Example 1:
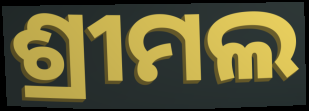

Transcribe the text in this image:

ଶ୍ରୀମଲ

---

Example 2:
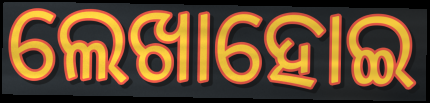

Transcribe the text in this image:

ଲେଖାହୋଇ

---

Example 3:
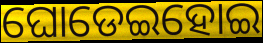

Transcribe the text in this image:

ଘୋଡେଇହୋଇ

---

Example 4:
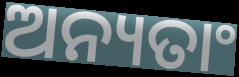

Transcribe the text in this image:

ଅନ୍ୟତାଂ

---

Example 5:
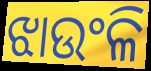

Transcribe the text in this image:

ଝାଉଂଳି